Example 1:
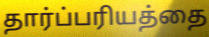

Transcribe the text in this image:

தார்ப்பரியத்தை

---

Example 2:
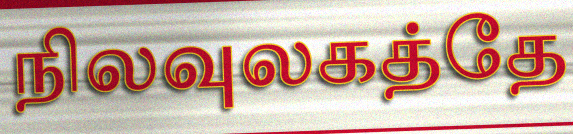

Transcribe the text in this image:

நிலவுலகத்தே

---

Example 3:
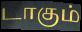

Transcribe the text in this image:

டாகும்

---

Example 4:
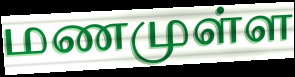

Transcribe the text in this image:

மணமுள்ள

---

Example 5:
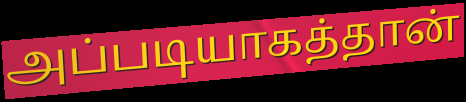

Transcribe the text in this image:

அப்படியாகத்தான்